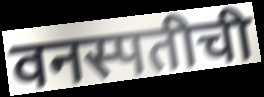
वनस्पतीची